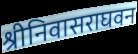
श्रीनिवासराघवन